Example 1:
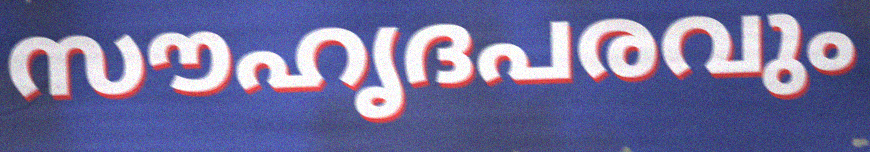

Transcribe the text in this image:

സൗഹൃദപരവും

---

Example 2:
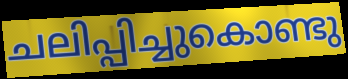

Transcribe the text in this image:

ചലിപ്പിച്ചുകൊണ്ടു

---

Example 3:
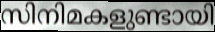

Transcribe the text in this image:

സിനിമകളുണ്ടായി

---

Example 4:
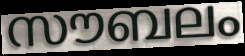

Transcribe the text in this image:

സൗബലം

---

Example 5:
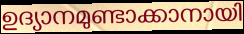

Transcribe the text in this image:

ഉദ്യാനമുണ്ടാക്കാനായി